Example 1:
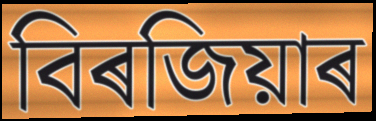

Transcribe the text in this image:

বিৰজিয়াৰ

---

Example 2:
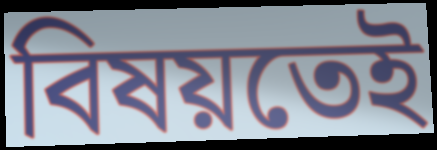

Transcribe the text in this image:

বিষয়তেই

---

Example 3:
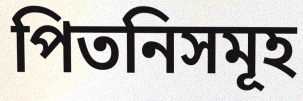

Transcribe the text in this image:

পিতনিসমূহ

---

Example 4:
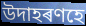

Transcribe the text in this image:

উদাহৰণহে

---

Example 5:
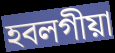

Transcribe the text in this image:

হবলগীয়া